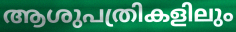
ആശുപത്രികളിലും